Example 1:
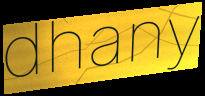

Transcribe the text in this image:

dhany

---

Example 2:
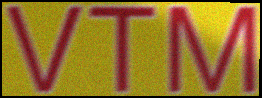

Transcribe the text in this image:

VTM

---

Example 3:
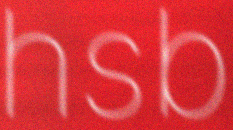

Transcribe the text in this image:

hsb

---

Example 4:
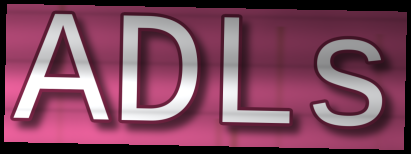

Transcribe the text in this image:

ADLs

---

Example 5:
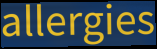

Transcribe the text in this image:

allergies